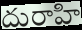
దురాహి